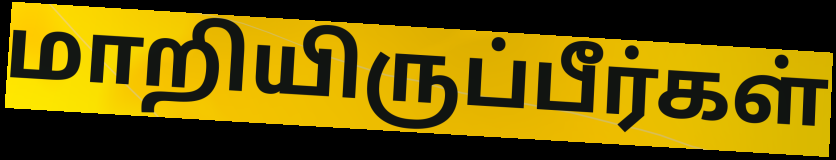
மாறியிருப்பீர்கள்